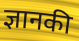
ज्ञानकी